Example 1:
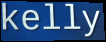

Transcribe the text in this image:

kelly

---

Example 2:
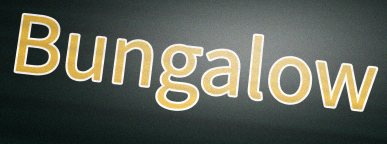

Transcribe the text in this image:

Bungalow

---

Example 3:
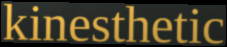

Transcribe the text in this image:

kinesthetic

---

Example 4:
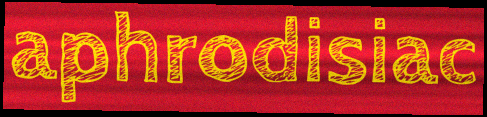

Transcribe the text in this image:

aphrodisiac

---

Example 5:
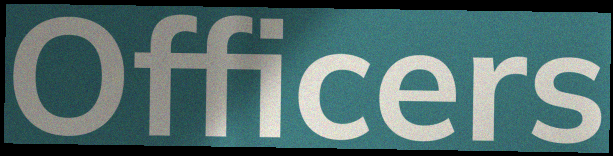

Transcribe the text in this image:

Officers